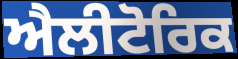
ਐਲੀਟੋਰਿਕ